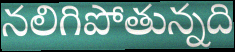
నలిగిపోతున్నది